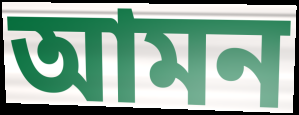
আমন